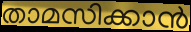
താമസിക്കാൻ